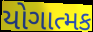
યોગાત્મક